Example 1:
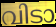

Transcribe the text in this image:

വിടാ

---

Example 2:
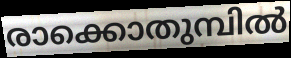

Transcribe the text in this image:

രാക്കൊതുമ്പിൽ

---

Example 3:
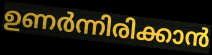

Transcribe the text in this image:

ഉണർന്നിരിക്കാൻ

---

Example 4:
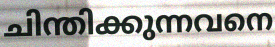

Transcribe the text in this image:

ചിന്തിക്കുന്നവനെ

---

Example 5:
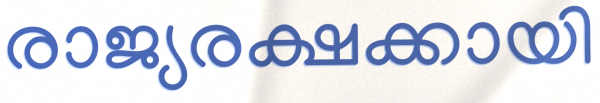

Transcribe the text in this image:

രാജ്യരക്ഷക്കായി